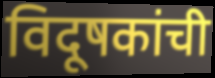
विदूषकांची